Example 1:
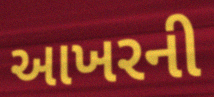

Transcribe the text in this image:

આખરની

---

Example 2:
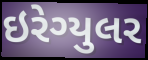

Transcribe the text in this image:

ઇરેગ્યુલર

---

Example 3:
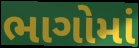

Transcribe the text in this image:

ભાગોમાં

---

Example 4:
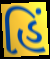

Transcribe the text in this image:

હિં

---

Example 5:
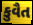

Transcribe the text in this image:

કુવૈત